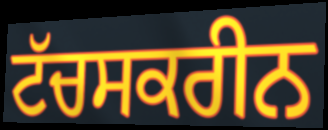
ਟੱਚਸਕਰੀਨ